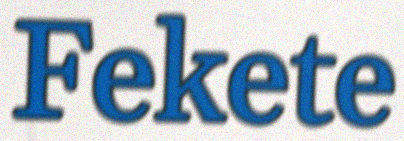
Fekete